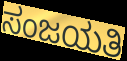
ಸಂಜಯತಿ